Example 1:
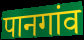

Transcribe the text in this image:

पानगांव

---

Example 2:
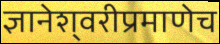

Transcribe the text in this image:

ज्ञानेश्वरीप्रमाणेच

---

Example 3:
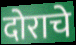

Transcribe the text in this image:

दोराचे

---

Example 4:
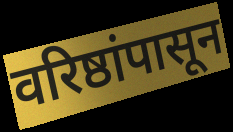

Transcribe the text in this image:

वरिष्ठांपासून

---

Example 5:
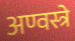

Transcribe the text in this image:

अण्वस्त्रे